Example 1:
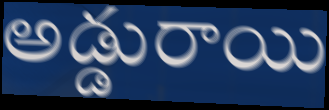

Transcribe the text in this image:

అడ్డురాయి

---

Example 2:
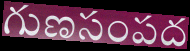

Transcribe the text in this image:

గుణసంపద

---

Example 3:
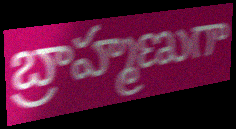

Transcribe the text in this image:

బ్రాహ్మణుగా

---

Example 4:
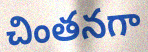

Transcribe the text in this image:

చింతనగా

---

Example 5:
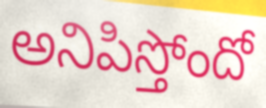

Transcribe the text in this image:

అనిపిస్తోందో